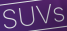
SUVs